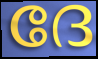
ദേ